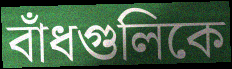
বাঁধগুলিকে